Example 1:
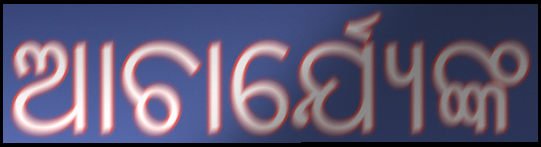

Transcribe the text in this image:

ଆଚାର୍ଯ୍ୟେଙ୍କ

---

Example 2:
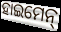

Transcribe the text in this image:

ହାଇମେନ୍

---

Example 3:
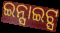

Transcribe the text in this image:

ଇନ୍ସାଇଟ୍ସ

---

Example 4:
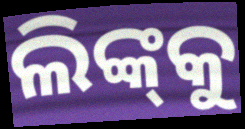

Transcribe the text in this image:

ଲିଙ୍କ୍‌କୁ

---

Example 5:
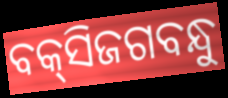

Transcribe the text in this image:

ବକ୍‌ସିଜଗବନ୍ଧୁ